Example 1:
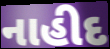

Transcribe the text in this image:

નાહીદ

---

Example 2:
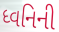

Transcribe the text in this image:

ધ્વનિની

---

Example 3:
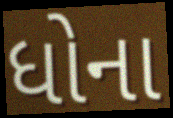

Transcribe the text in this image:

ધોના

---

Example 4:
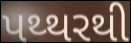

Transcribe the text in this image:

પથ્થરથી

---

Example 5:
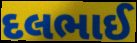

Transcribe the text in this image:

દલભાઈ